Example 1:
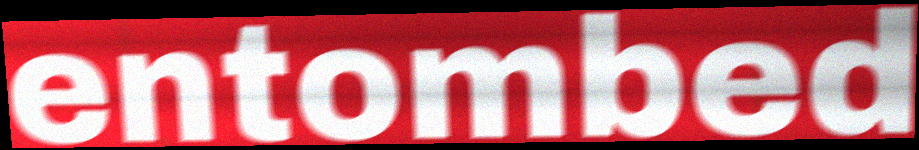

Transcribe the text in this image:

entombed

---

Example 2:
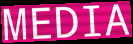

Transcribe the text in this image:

MEDIA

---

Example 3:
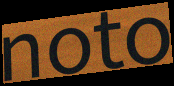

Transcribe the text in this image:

noto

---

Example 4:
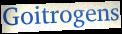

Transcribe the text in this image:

Goitrogens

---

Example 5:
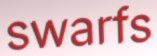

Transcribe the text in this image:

swarfs